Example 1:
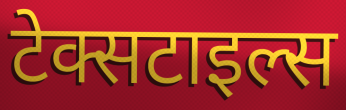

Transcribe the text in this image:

टेक्सटाइल्स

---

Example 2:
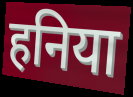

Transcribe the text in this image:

हनिया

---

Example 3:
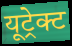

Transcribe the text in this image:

यूट्रेक्ट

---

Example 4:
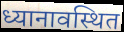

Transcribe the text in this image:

ध्यानावस्थित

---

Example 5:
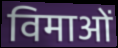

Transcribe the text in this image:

विमाओं